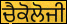
ਚੈਕੋਲੋਜੀ